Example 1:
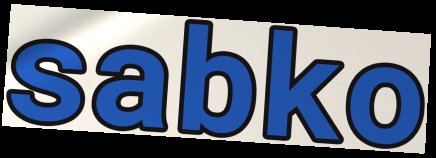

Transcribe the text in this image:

sabko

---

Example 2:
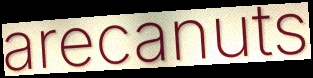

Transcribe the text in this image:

arecanuts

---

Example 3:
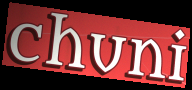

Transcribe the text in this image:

chuni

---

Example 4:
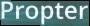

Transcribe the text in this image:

Propter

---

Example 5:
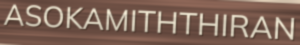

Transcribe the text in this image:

ASOKAMITHTHIRAN